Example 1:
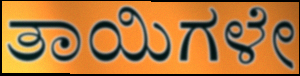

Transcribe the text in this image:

ತಾಯಿಗಳೇ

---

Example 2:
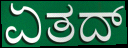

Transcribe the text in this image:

ಏತದ್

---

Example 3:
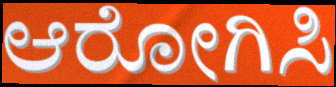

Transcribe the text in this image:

ಆರೋಗಿಸಿ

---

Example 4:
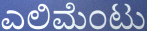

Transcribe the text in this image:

ಎಲಿಮೆಂಟು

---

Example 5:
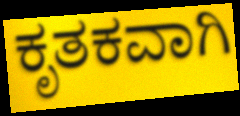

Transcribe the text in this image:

ಕೃತಕವಾಗಿ